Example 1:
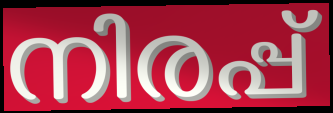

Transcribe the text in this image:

നിരപ്പ്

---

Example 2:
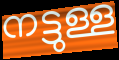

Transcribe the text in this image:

നട്ടുള്ള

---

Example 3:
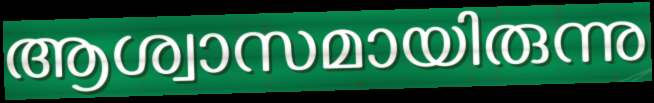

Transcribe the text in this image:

ആശ്വാസമായിരുന്നു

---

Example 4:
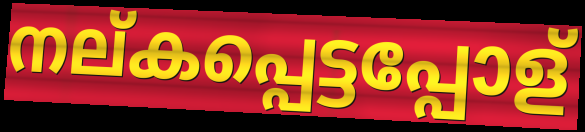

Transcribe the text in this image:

നല്കപ്പെട്ടപ്പോള്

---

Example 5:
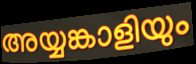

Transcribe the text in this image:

അയ്യങ്കാളിയും